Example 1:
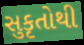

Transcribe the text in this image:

સુકૃતોથી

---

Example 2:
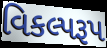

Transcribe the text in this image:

વિકલ્પરૂપ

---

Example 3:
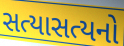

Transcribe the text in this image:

સત્યાસત્યનો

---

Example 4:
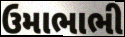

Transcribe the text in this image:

ઉમાભાભી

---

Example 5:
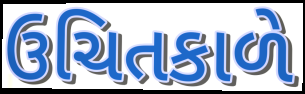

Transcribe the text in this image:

ઉચિતકાળે